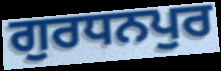
ਗੁਰਧਨਪੁਰ